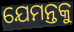
ଯେମନ୍ତକୁ